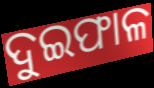
ଦୁଇଫାଳ